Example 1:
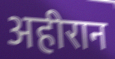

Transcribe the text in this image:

अहीरान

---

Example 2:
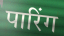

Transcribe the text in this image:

पारिंग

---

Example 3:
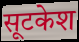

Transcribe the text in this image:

सूटकेश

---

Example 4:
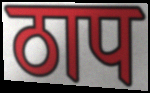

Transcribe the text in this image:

ठाप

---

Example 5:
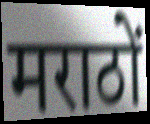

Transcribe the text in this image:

मराठों